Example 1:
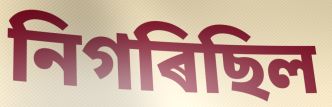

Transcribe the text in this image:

নিগৰিছিল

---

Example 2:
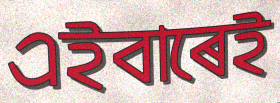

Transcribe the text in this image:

এইবাৰেই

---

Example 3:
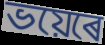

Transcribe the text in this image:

ভয়েৰে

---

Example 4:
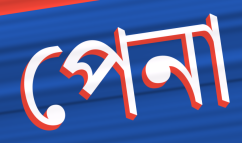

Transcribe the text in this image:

পেনা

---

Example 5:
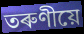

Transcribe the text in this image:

তৰুণীয়ে